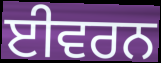
ਈਵਰਨ